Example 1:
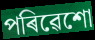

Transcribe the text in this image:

পৰিৱেশো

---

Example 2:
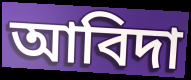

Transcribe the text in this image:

আবিদা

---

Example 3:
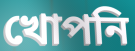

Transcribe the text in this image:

খোপনি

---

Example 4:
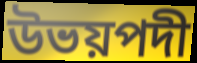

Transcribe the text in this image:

উভয়পদী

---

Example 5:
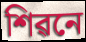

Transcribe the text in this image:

শিৱনে